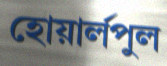
হোয়ার্লপুল